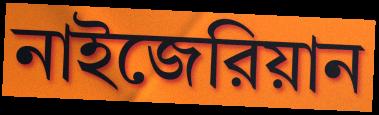
নাইজেরিয়ান